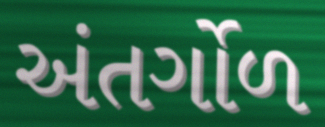
અંતર્ગોળ